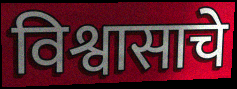
विश्वासाचे